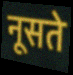
नूसते